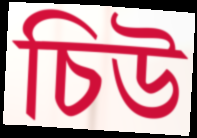
চিউ